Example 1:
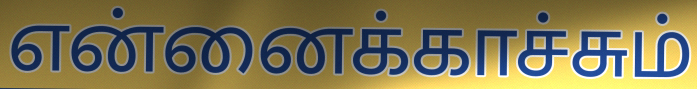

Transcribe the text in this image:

என்னைக்காச்சும்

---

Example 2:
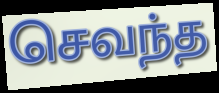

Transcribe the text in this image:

செவந்த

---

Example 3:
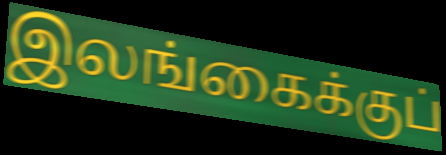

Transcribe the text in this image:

இலங்கைக்குப்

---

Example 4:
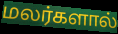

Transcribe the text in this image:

மலர்களால்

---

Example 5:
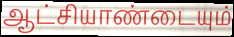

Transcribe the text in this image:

ஆட்சியாண்டையும்